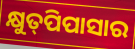
କ୍ଷୁତ୍‌ପିପାସାର